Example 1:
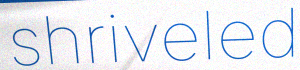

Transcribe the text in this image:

shriveled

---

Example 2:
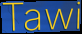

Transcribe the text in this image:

Tawi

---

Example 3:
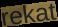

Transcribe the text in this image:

rekat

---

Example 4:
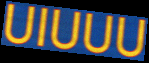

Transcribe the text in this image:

UIUUU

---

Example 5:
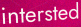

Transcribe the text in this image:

intersted